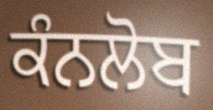
ਕੰਨਲੋਬ